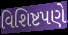
વિશિષ્ટપણે